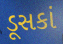
ડૂસકાં